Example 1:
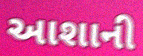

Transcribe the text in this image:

આશાની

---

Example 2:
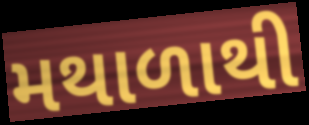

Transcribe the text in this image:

મથાળાથી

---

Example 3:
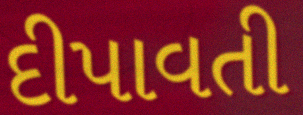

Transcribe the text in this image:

દીપાવતી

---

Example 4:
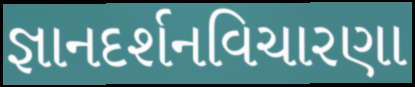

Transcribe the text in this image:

જ્ઞાનદર્શનવિચારણા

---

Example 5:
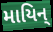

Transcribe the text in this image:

માયિન્